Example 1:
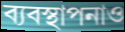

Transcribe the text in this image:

ব্যবস্থাপনাও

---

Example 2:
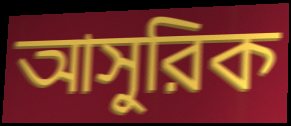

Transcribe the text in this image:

আসুরিক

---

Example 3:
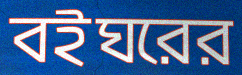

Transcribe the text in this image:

বইঘরের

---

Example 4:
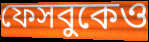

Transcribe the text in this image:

ফেসবুকেও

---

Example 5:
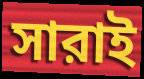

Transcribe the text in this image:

সারাই